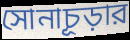
সোনাচূড়ার